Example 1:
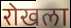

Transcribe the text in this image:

रोखला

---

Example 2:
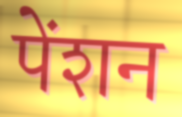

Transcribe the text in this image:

पेंशन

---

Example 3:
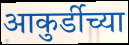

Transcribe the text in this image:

आकुर्डीच्या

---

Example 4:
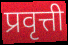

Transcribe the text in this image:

प्रवृत्ती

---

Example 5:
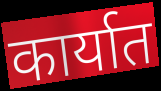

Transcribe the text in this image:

कार्यात